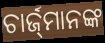
ଚାର୍ଜ୍‍ମାନଙ୍କ